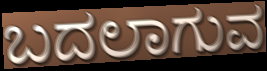
ಬದಲಾಗುವ